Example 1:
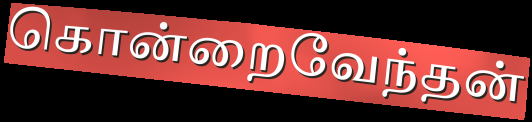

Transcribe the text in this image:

கொன்றைவேந்தன்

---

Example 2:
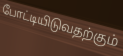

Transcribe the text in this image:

போட்டியிடுவதற்கும்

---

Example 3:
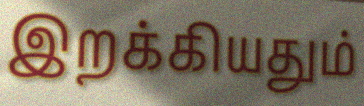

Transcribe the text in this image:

இறக்கியதும்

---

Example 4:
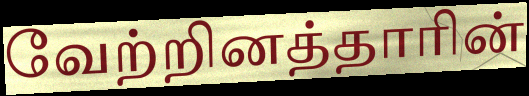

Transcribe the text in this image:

வேற்றினத்தாரின்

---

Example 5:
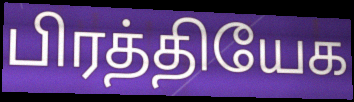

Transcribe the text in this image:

பிரத்தியேக